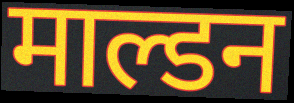
माल्डन